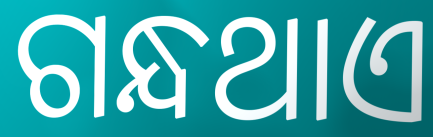
ଗନ୍ଧଥାଏ